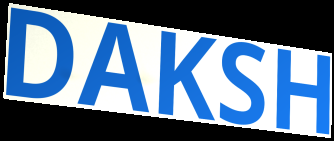
DAKSH